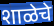
शाळेचे